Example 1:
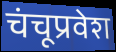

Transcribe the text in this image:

चंचूप्रवेश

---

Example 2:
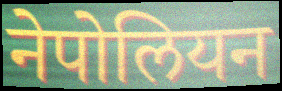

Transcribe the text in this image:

नेपोलियन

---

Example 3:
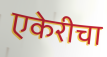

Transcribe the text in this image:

एकेरीचा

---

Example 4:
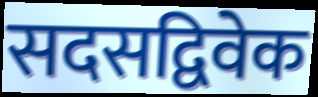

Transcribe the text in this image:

सदसद्विवेक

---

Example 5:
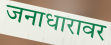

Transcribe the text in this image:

जनाधारावर